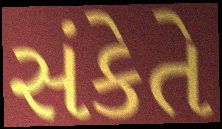
સંકેતે